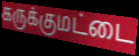
கருக்குமட்டை